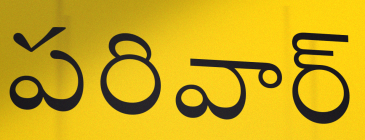
పరివార్